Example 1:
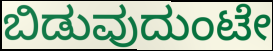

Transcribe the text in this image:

ಬಿಡುವುದುಂಟೇ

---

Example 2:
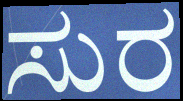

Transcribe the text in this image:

ಸುರ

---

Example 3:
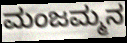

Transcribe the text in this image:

ಮಂಜಮ್ಮನ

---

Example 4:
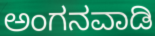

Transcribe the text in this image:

ಅಂಗನವಾಡಿ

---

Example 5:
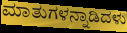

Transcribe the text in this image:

ಮಾತುಗಳನ್ನಾಡಿದಳು